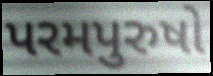
પરમપુરુષો